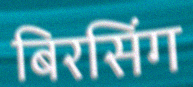
बिरसिंग